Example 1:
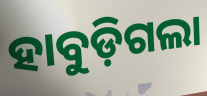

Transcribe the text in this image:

ହାବୁଡ଼ିଗଲା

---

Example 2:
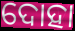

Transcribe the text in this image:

ଦୋହା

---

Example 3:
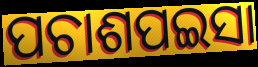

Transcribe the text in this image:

ପଚାଶପଇସା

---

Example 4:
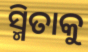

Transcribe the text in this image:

ସ୍ମିତାକୁ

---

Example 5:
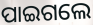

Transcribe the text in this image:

ପାଇଗଲେ